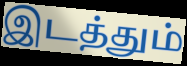
இடத்தும்